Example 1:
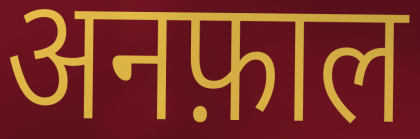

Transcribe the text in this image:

अनफ़ाल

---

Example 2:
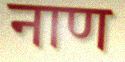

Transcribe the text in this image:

नाण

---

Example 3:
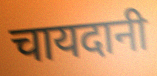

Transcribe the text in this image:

चायदानी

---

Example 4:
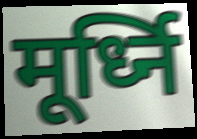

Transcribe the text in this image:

मूर्ध्नि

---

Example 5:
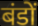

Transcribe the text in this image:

बंडों